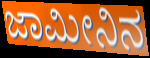
ಜಾಮೀನಿನ